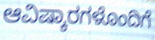
ಆವಿಷ್ಕಾರಗಳೊಂದಿಗೆ